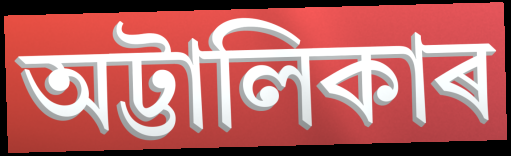
অট্টালিকাৰ